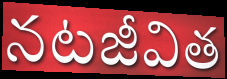
నటజీవిత